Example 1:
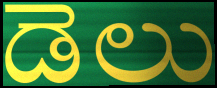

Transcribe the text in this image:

డెలు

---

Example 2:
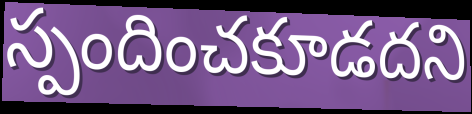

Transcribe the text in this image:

స్పందించకూడదని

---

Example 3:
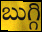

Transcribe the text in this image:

బుగ్గి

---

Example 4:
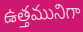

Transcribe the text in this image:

ఉత్తమునిగా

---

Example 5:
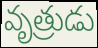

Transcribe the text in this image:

వృత్రుడు